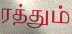
ரத்தும்